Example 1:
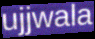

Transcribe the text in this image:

ujjwala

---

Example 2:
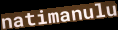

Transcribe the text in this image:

natimanulu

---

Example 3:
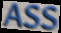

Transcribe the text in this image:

ASS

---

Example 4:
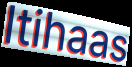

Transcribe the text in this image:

Itihaas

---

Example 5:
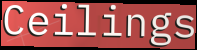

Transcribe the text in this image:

Ceilings